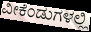
ವೀಕೆಂಡುಗಳಲ್ಲಿ